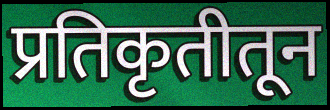
प्रतिकृतीतून